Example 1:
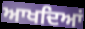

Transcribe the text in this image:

ਆਖਦਿਆਂ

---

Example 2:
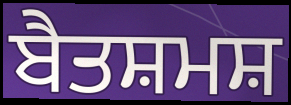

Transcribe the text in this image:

ਬੈਤਸ਼ਮਸ਼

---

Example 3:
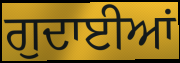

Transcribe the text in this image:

ਗੁਦਾਈਆਂ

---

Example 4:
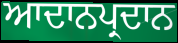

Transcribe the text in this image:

ਆਦਾਨਪ੍ਰਦਾਨ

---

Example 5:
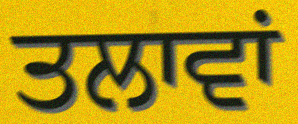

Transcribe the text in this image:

ਤਲਾਵਾਂ